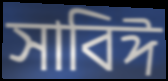
সাবিঈ